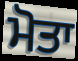
ਮੋਤਾ